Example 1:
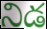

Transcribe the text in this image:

నిడ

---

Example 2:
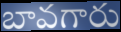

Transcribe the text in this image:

బావగారు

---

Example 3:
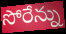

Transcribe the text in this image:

సోరేన్ను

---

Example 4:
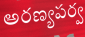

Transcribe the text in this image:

అరణ్యపర్వ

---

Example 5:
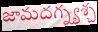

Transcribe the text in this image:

జామదగ్న్యశ్చ